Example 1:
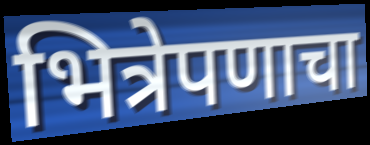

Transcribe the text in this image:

भित्रेपणाचा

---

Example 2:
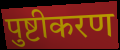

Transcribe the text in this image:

पुष्टीकरण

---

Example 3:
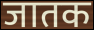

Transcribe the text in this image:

जातक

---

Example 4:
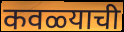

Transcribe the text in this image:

कवळ्याची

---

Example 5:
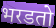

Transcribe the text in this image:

भरडतो